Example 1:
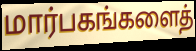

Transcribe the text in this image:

மார்பகங்களைத்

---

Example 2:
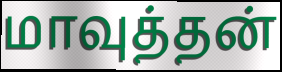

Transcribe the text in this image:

மாவுத்தன்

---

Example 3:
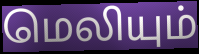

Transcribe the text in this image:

மெலியும்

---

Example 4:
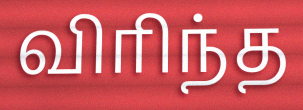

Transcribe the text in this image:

விரிந்த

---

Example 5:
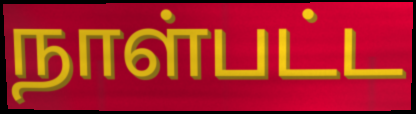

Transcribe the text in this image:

நாள்பட்ட